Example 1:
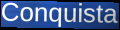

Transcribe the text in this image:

Conquista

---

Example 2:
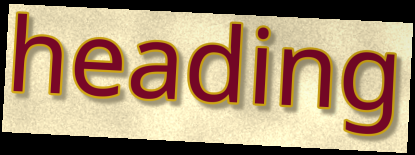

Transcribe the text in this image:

heading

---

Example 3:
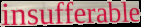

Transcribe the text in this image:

insufferable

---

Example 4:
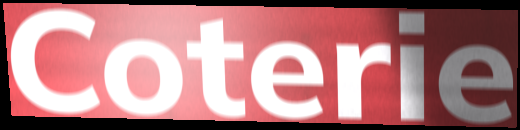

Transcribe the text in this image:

Coterie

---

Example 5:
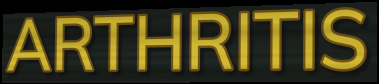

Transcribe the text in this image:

ARTHRITIS